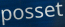
posset